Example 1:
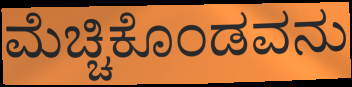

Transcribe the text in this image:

ಮೆಚ್ಚಿಕೊಂಡವನು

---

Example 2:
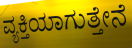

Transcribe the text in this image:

ವ್ಯಕ್ತಿಯಾಗುತ್ತೇನೆ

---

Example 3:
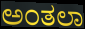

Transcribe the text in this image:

ಅಂತಲಾ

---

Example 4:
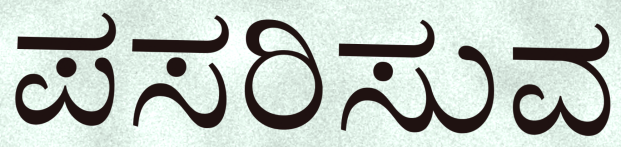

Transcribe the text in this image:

ಪಸರಿಸುವ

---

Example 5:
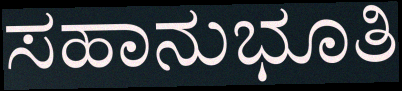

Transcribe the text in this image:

ಸಹಾನುಭೂತಿ